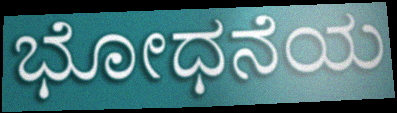
ಭೋಧನೆಯ